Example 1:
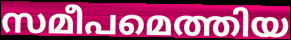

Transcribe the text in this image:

സമീപമെത്തിയ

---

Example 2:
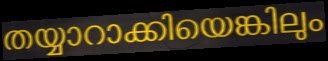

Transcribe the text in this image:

തയ്യാറാക്കിയെങ്കിലും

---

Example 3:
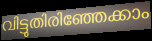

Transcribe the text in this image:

വിട്ടുതിരിഞ്ഞേക്കാം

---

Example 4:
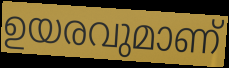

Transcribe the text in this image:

ഉയരവുമാണ്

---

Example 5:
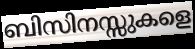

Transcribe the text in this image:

ബിസിനസ്സുകളെ